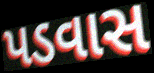
પડવાસ